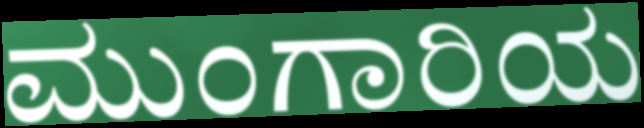
ಮುಂಗಾರಿಯ